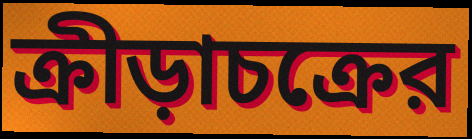
ক্রীড়াচক্রের